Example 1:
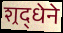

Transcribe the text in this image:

श्रद्धेने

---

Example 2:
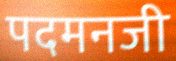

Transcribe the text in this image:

पदमनजी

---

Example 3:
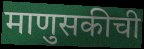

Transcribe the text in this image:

माणुसकीची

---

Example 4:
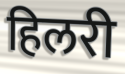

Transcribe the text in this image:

हिलरी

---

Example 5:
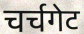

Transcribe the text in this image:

चर्चगेट